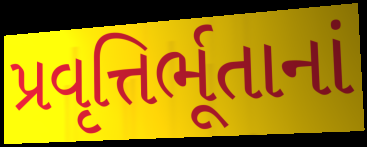
પ્રવૃત્તિર્ભૂતાનાં